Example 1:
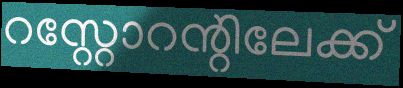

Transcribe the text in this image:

റസ്റ്റോറന്റിലേക്ക്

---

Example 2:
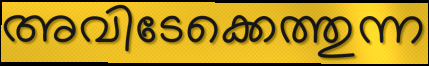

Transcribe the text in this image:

അവിടേക്കെത്തുന്ന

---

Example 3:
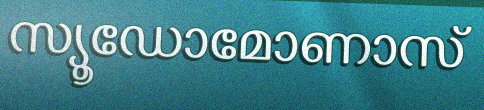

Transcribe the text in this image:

സ്യൂഡോമോണാസ്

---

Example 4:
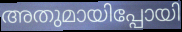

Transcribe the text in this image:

അതുമായിപ്പോയി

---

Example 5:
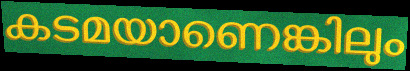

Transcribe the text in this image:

കടമയാണെങ്കിലും